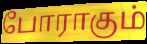
போராகும்